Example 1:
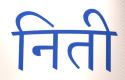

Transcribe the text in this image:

निती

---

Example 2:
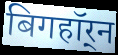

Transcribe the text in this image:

बिगहॉर्न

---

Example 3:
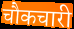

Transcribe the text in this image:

चौकचारी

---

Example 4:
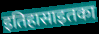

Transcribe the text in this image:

इतिहासाइतका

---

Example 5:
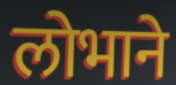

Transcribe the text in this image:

लोभाने